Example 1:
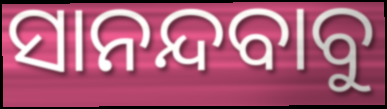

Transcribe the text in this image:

ସାନନ୍ଦବାବୁ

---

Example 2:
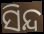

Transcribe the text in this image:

ସିନ୍ଦ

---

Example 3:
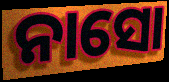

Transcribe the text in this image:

ନାସୋ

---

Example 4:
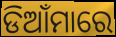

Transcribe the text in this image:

ଡିଆଁମାରେ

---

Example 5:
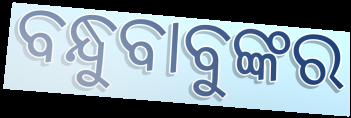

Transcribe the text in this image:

ବନ୍ଧୁବାବୁଙ୍କର